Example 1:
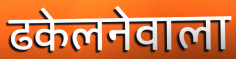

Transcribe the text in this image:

ढकेलनेवाला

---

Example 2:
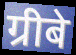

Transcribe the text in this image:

ग्रीबे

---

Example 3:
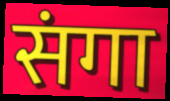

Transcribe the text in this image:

संगा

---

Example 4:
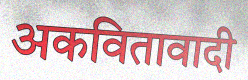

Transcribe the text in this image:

अकवितावादी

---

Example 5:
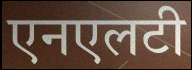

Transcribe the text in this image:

एनएलटी